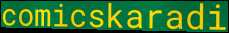
comicskaradi